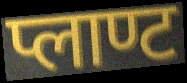
प्लाण्ट